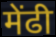
मेंढी